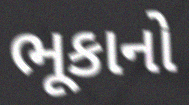
ભૂકાનો